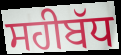
ਸਹੀਬੱਧ